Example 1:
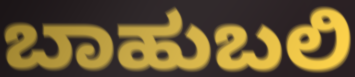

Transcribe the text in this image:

ಬಾಹುಬಲಿ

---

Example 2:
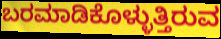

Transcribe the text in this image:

ಬರಮಾಡಿಕೊಳ್ಳುತ್ತಿರುವ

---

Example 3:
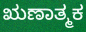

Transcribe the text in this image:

ಋಣಾತ್ಮಕ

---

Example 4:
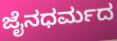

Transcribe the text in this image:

ಜೈನಧರ್ಮದ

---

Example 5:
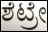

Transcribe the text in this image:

ಶೆಟ್ರೇ